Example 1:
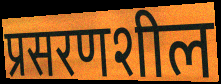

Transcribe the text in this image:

प्रसरणशील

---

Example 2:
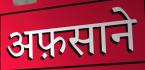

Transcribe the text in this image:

अफ़साने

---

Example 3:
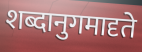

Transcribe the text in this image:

शब्दानुगमादृते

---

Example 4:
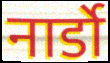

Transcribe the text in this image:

नार्डो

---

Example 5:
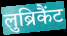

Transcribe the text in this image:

लुब्रिकैंट